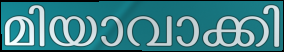
മിയാവാക്കി